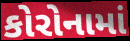
કોરોનામાં